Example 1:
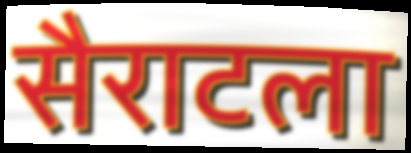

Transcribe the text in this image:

सैराटला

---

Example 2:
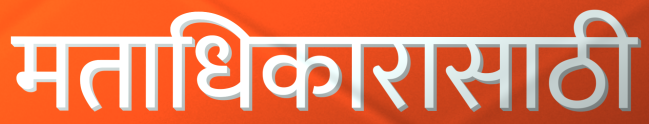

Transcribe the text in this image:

मताधिकारासाठी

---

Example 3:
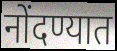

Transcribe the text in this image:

नोंदण्यात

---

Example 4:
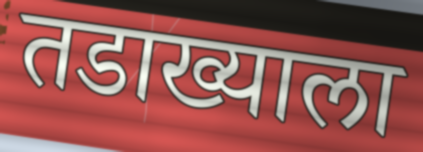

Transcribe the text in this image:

तडाख्याला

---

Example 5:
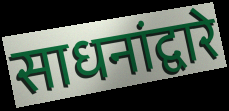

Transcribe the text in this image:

साधनांद्वारे